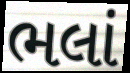
ભલાં